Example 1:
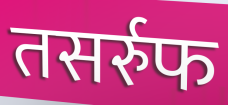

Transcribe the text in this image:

तसर्रुफ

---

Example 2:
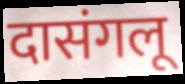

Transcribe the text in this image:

दासंगलू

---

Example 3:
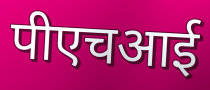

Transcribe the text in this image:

पीएचआई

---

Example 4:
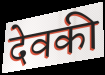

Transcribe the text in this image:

देवकी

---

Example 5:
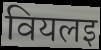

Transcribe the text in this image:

वियलइ